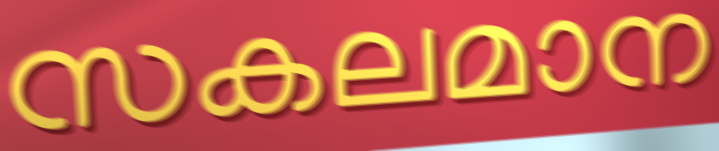
സകലമാന